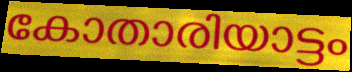
കോതാരിയാട്ടം